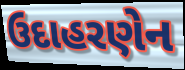
ઉદાહરણેન